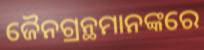
ଜୈନଗ୍ରନ୍ଥମାନଙ୍କରେ